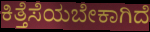
ಕಿತ್ತೆಸೆಯಬೇಕಾಗಿದೆ